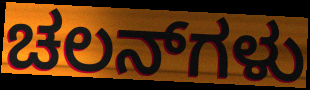
ಚಲನ್‌ಗಳು